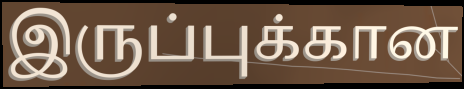
இருப்புக்கான